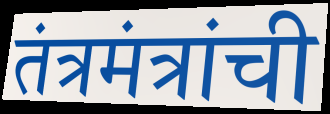
तंत्रमंत्रांची